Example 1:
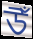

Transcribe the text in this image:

উঁ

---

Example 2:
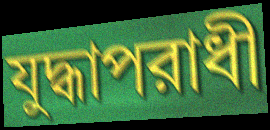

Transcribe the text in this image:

যুদ্ধাপরাধী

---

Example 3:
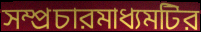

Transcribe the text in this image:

সম্প্রচারমাধ্যমটির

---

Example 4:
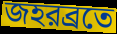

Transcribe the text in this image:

জহরব্রতে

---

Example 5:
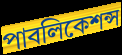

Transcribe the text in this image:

পাবলিকেশন্স